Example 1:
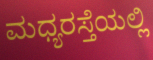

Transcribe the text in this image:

ಮಧ್ಯರಸ್ತೆಯಲ್ಲಿ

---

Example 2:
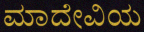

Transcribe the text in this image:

ಮಾದೇವಿಯ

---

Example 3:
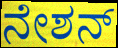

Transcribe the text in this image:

ನೇಶನ್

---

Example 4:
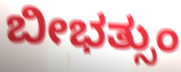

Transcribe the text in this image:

ಬೀಭತ್ಸುಂ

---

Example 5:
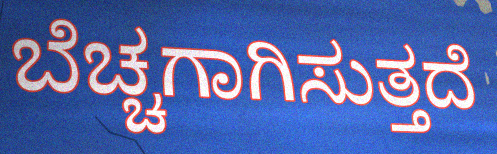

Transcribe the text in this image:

ಬೆಚ್ಚಗಾಗಿಸುತ್ತದೆ